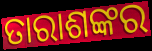
ତାରାଶଙ୍କର